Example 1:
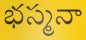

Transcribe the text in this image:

భస్మనా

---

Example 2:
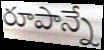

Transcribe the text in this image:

రూపాన్నే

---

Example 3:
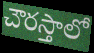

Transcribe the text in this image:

చౌరస్తాలో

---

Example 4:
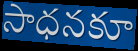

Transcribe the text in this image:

సాధనకూ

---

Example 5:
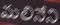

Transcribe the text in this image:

మలినేని